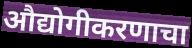
औद्योगीकरणाचा